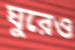
ঘুরেও